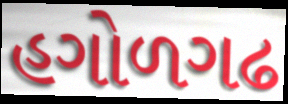
હગોળગઢ